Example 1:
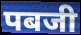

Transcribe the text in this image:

पबजी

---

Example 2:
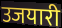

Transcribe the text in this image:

उजयारी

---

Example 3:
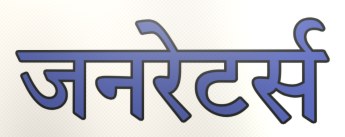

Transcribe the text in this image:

जनरेटर्स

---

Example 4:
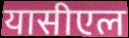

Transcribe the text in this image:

यासीएल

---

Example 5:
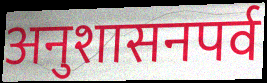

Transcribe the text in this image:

अनुशासनपर्व